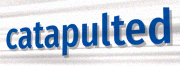
catapulted